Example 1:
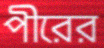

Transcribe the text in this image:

পীরের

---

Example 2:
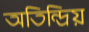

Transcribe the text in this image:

অতিন্দ্রিয়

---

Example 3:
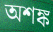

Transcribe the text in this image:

অশঙ্ক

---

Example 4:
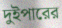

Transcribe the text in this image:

দুইপারের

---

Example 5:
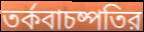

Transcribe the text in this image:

তর্কবাচষ্পতির